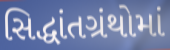
સિદ્ધાંતગ્રંથોમાં